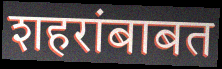
शहरांबाबत